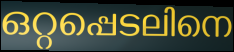
ഒറ്റപ്പെടലിനെ